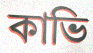
কাভি